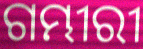
ଗମ୍ଭୀରୀ